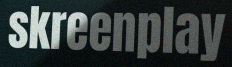
skreenplay